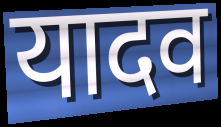
यादव